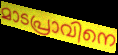
മാടപ്രാവിനെ